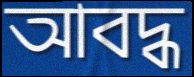
আবদ্ধ